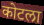
कोटला